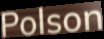
Polson